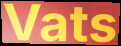
Vats